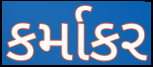
કર્માકર